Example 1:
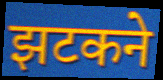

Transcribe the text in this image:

झटकने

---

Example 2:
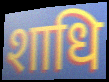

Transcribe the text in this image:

शाधि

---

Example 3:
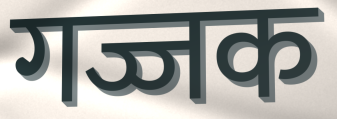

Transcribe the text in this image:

गज्जक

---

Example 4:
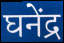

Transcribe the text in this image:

घनेंद्र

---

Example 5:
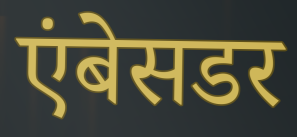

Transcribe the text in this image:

एंबेसडर